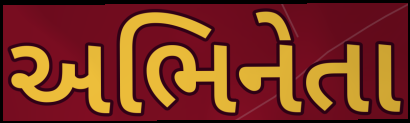
અભિનેતા